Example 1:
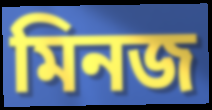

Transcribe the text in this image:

মিনজ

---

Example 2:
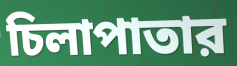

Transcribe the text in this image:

চিলাপাতার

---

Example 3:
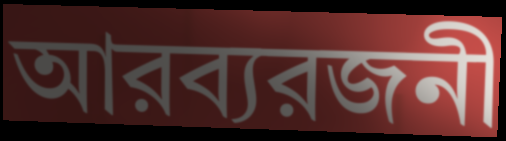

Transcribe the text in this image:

আরব্যরজনী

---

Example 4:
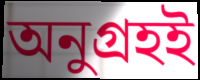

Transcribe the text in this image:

অনুগ্রহই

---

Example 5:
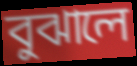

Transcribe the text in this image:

বুঝালে